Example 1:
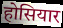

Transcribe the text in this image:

होसियार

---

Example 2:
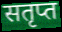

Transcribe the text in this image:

सतृप्त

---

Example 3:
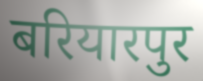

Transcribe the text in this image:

बरियारपुर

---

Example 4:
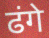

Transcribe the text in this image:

ढंगे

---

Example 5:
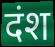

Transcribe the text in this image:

दंश